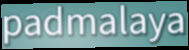
padmalaya